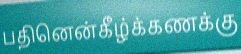
பதினென்கீழ்க்கணக்கு